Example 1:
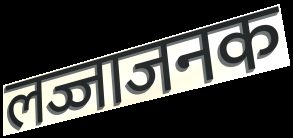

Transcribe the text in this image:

लज्जाजनक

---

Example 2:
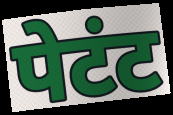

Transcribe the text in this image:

पेटंट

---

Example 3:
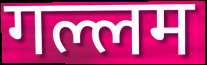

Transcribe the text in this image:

गल्लम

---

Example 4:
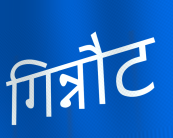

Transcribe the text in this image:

गिन्नौट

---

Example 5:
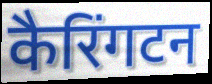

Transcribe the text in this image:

कैरिंगटन